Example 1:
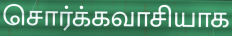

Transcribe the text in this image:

சொர்க்கவாசியாக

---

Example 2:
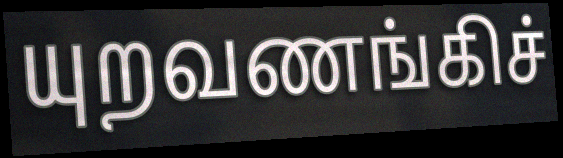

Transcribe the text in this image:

யுறவணங்கிச்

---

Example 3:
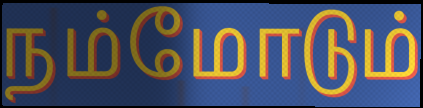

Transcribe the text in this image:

நம்மோடும்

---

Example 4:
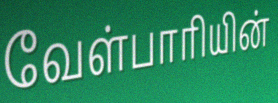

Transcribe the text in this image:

வேள்பாரியின்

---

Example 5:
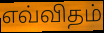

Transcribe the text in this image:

எவ்விதம்